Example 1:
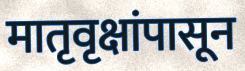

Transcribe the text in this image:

मातृवृक्षांपासून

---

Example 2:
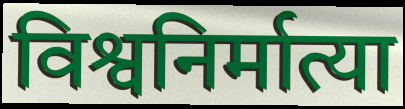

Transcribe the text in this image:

विश्वनिर्मात्या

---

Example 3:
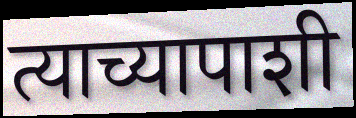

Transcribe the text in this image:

त्याच्यापाशी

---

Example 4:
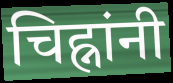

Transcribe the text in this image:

चिह्नांनी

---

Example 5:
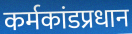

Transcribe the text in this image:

कर्मकांडप्रधान